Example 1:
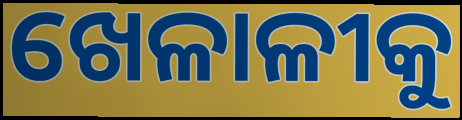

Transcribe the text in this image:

ଖେଳାଳୀକୁ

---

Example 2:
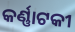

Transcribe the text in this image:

କର୍ଣ୍ଣାଟକୀ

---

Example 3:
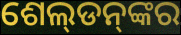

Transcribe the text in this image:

ଶେଲ୍‌ଡନ୍‌ଙ୍କର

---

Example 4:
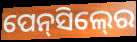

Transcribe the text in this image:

ପେନ୍‍ସିଲ୍‍ରେ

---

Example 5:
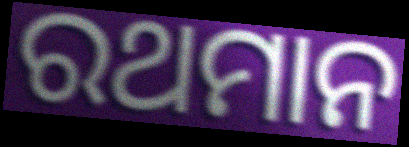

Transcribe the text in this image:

ରଥମାନ